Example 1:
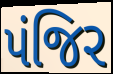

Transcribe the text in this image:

પંજિર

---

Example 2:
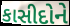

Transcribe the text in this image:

કાસીદોને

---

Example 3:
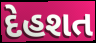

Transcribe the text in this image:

દેહશત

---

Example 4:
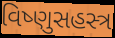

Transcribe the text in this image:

વિષ્ણુસહસ્ત્ર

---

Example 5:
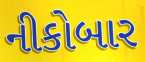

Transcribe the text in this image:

નીકોબાર